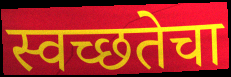
स्वच्छतेचा